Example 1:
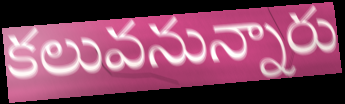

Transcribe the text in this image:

కలువనున్నారు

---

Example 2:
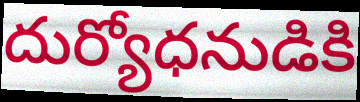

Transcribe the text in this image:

దుర్యోధనుడికి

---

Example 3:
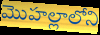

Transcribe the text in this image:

మొహల్లాలోని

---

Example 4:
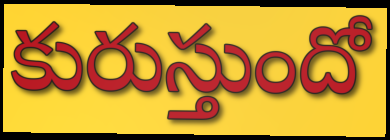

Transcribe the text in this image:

కురుస్తుందో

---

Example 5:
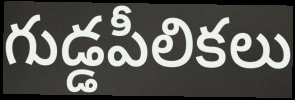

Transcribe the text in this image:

గుడ్డపీలికలు